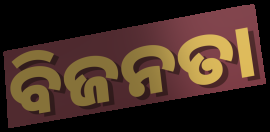
ବିଜନତା